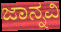
ಜಾನ್ನವಿ